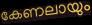
കേണലായും